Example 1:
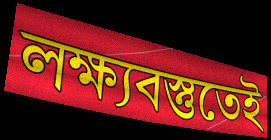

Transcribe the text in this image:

লক্ষ্যবস্তুতেই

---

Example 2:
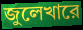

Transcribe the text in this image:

জুলেখারে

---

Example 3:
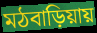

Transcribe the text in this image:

মঠবাড়িয়ায়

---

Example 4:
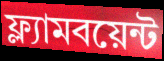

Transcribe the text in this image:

ফ্ল্যামবয়েন্ট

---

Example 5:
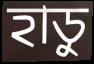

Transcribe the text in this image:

হাডু